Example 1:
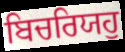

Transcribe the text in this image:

ਬਿਚਰਿਯਹੁ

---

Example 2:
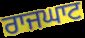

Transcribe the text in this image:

ਰਾਜਘਾਟ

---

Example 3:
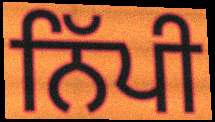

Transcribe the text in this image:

ਨਿੱਪੀ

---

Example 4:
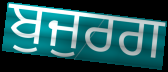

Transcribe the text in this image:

ਬੁਜੁਰਗ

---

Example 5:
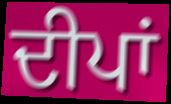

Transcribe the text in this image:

ਦੀਪਾਂ